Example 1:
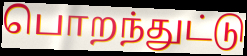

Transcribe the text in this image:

பொறந்துட்டு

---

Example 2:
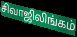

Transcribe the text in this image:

சிவாஜிலிங்கம்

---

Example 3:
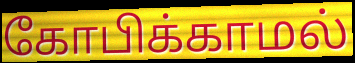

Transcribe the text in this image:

கோபிக்காமல்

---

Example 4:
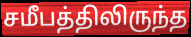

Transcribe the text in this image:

சமீபத்திலிருந்த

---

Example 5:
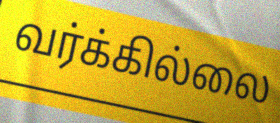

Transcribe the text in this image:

வர்க்கில்லை